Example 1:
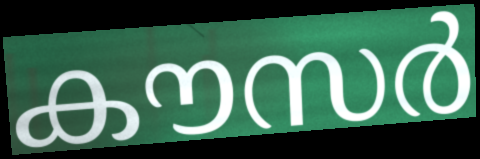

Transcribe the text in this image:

കൗസർ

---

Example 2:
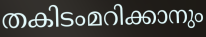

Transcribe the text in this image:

തകിടംമറിക്കാനും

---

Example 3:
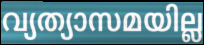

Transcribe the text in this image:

വ്യത്യാസമയില്ല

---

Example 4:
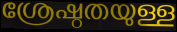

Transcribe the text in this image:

ശ്രേഷ്ഠതയുള്ള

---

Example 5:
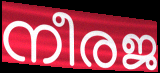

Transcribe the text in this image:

നീരജ